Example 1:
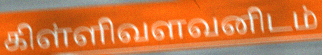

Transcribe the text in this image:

கிள்ளிவளவனிடம்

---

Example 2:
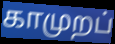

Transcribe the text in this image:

காமுறப்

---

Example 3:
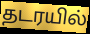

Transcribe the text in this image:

தடரயில்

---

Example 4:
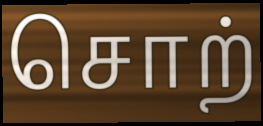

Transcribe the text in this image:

சொற்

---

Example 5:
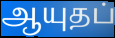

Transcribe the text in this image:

ஆயுதப்